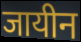
जायीन